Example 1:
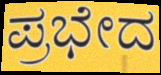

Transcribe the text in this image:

ಪ್ರಭೇದ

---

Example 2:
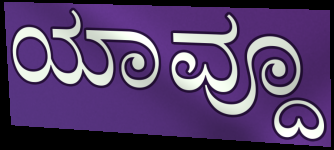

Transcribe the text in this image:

ಯಾವ್ದೂ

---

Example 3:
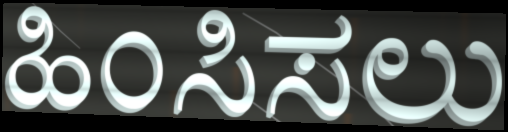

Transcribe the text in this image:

ಹಿಂಸಿಸಲು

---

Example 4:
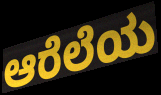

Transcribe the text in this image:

ಆರೆಲೆಯ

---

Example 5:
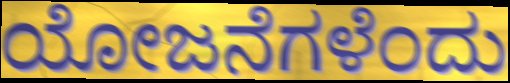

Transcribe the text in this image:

ಯೋಜನೆಗಳೆಂದು